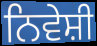
ਨਿਵੇਸ਼ੀ